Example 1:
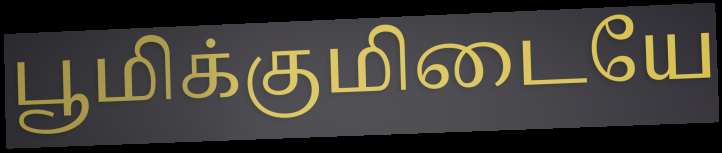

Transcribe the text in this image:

பூமிக்குமிடையே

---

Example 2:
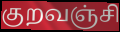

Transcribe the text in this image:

குறவஞ்சி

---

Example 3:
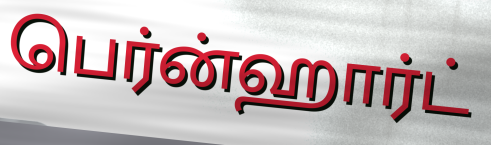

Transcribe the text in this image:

பெர்ன்ஹார்ட்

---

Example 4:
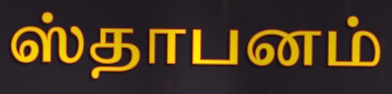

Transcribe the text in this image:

ஸ்தாபனம்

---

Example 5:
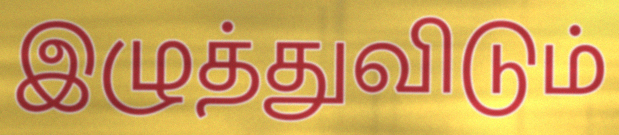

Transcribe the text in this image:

இழுத்துவிடும்